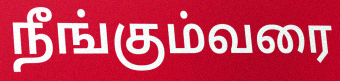
நீங்கும்வரை